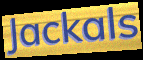
Jackals